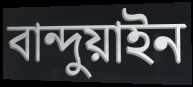
বান্দুয়াইন